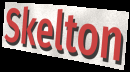
Skelton